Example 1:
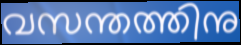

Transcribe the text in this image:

വസന്തത്തിനു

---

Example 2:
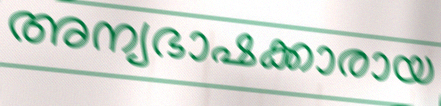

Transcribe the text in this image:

അന്യഭാഷക്കാരായ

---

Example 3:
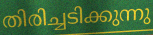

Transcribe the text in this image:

തിരിച്ചടിക്കുന്നു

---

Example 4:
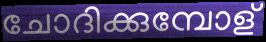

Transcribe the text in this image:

ചോദിക്കുമ്പോള്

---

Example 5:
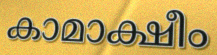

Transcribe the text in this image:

കാമാക്ഷീം